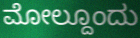
ಮೋಲ್ದೂಂದು